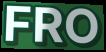
FRO